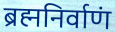
ब्रह्मनिर्वाणं